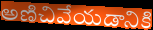
అణిచివేయడానికి